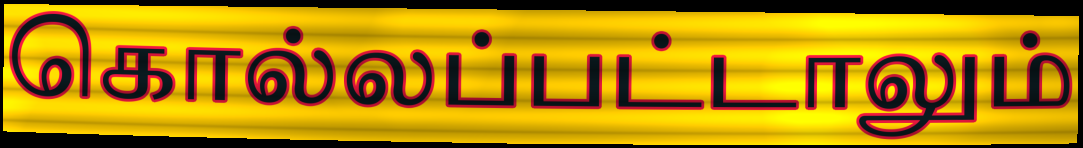
கொல்லப்பட்டாலும்